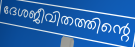
ദേശജീവിതത്തിന്റെ